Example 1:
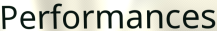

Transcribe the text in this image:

Performances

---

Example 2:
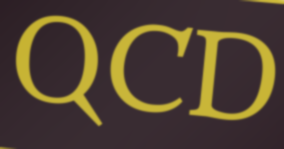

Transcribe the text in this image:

QCD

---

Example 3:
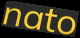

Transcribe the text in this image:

nato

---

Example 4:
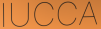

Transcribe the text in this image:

IUCCA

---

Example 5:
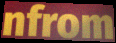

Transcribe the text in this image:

nfrom